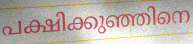
പക്ഷിക്കുഞ്ഞിനെ